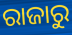
ରାଜାରୁ